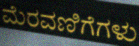
ಮೆರವಣಿಗೆಗಳು